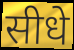
सीधे